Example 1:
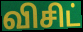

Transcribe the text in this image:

விசிட்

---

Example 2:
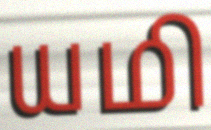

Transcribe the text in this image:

யமி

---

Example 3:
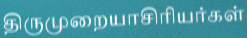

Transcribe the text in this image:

திருமுறையாசிரியர்கள்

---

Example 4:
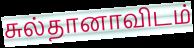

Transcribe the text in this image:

சுல்தானாவிடம்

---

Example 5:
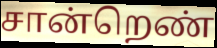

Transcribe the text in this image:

சான்றெண்